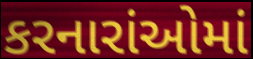
કરનારાંઓમાં